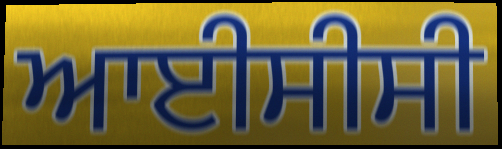
ਆਈਸੀਸੀ